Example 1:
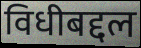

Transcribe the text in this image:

विधीबद्दल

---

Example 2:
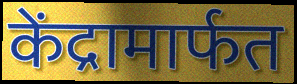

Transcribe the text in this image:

केंद्रामार्फत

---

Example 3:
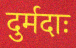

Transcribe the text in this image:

दुर्मदाः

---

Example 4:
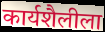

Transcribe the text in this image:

कार्यशैलीला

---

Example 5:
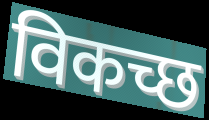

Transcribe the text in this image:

विकच्छ